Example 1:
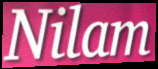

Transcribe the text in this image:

Nilam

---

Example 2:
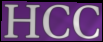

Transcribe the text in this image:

HCC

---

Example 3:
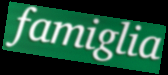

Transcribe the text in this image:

famiglia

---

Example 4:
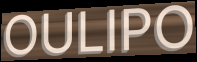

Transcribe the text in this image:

OULIPO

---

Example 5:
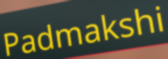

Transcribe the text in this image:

Padmakshi